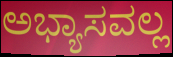
ಅಭ್ಯಾಸವಲ್ಲ